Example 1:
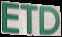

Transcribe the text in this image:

ETD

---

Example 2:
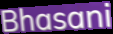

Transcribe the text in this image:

Bhasani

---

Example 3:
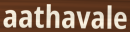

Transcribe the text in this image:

aathavale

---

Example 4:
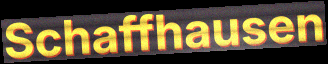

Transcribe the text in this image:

Schaffhausen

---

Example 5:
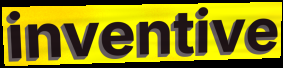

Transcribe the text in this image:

inventive